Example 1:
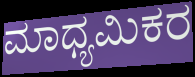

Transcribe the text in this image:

ಮಾಧ್ಯಮಿಕರ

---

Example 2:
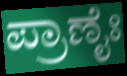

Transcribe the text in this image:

ಪ್ರಾಣೈಃ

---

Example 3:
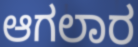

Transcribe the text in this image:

ಆಗಲಾರ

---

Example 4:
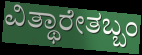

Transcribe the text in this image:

ವಿತ್ಥಾರೇತಬ್ಬಂ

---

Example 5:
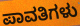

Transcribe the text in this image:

ಪಾವತಿಗಳು